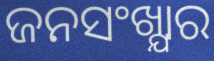
ଜନସଂଖ୍ଯାର